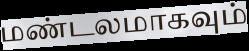
மண்டலமாகவும்